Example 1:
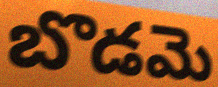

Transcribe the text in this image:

బొడమె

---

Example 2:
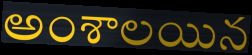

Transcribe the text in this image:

అంశాలయిన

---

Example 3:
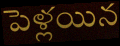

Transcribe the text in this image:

పెళ్లయిన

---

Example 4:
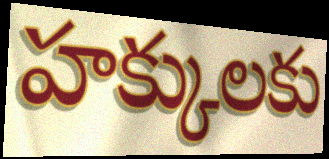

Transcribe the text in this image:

హక్కులకు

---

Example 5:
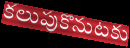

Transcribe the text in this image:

కలుపుకొనుటకు